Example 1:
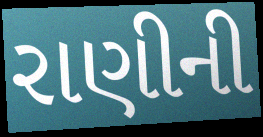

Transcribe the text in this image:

રાણીની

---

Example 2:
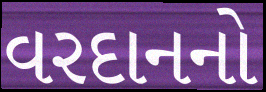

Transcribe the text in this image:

વરદાનનો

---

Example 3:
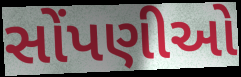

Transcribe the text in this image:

સોંપણીઓ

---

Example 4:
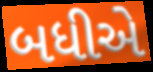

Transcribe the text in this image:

બધીએ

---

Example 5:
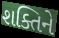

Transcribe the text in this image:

શક્તિને